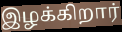
இழக்கிறார்